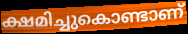
ക്ഷമിച്ചുകൊണ്ടാണ്